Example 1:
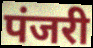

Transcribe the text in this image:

पंजरी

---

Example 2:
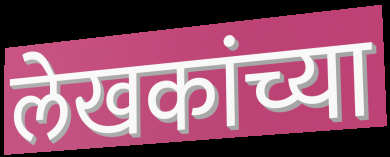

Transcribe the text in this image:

लेखकांच्या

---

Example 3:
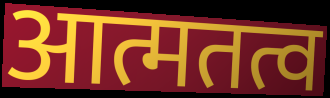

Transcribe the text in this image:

आत्मतत्व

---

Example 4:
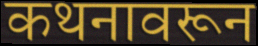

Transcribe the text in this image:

कथनावरून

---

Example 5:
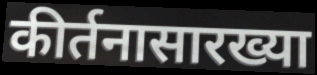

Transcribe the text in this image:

कीर्तनासारख्या